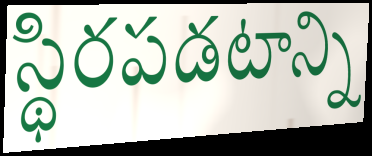
స్థిరపడటాన్ని